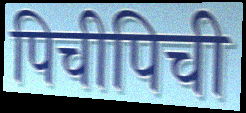
पिचीपिची